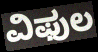
ವಿಫುಲ